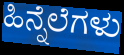
ಹಿನ್ನೆಲೆಗಳು